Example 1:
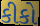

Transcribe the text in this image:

કીકો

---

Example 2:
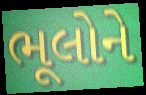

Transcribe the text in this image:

ભૂલોને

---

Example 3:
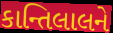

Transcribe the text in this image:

કાન્તિલાલને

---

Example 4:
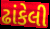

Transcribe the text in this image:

ઢાંકેલી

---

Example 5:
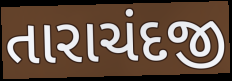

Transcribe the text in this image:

તારાચંદજી